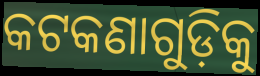
କଟକଣାଗୁଡ଼ିକୁ